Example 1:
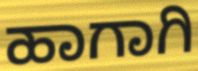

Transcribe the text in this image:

ಹಾಗಾಗಿ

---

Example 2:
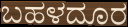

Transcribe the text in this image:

ಬಹಳದೂರ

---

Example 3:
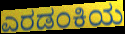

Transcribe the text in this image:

ಎರಡಂಕಿಯ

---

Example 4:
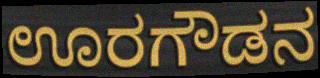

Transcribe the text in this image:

ಊರಗೌಡನ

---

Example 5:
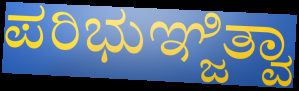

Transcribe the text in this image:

ಪರಿಭುಞ್ಜಿತ್ವಾ